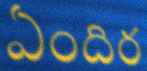
ఏందిర